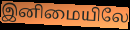
இனிமையிலே